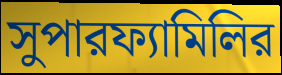
সুপারফ্যামিলির